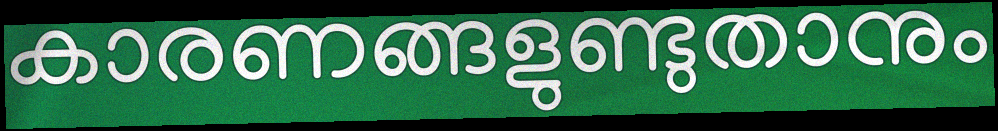
കാരണങ്ങളുണ്ടുതാനും